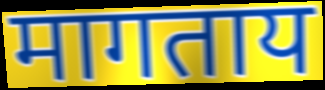
मागताय